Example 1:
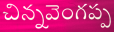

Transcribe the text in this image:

చిన్నవెంగప్ప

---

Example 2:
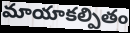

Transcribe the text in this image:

మాయాకల్పితం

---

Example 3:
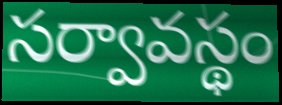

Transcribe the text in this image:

సర్వావస్థం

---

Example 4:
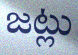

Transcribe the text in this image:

జట్లు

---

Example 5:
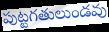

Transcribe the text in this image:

పుట్టగతులుండవు